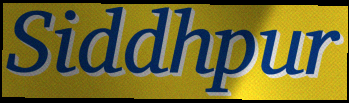
Siddhpur